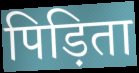
पिड़िता